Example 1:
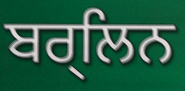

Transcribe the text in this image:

ਬਰ੍ਲਿਨ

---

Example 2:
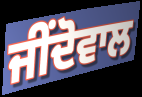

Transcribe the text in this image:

ਜੀਂਦੋਵਾਲ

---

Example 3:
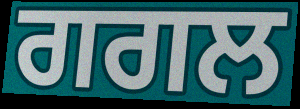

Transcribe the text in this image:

ਗਗਲ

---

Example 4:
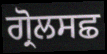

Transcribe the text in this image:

ਗ੍ਰੋਲਸਛ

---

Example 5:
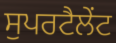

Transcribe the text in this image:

ਸੁਪਰਟੈਲੇਂਟ